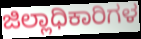
ಜಿಲ್ಲಾಧಿಕಾರಿಗಳ